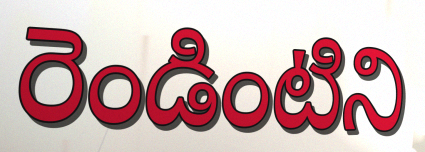
రెండింటిని